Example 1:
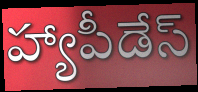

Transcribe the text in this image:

హ్యాపీడేస్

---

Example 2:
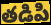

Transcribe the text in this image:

తడిపి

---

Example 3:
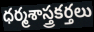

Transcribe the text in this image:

ధర్మశాస్త్రకర్తలు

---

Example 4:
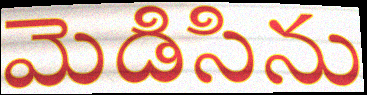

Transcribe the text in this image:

మెడిసిను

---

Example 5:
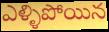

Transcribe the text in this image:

ఎళ్ళిపోయిన